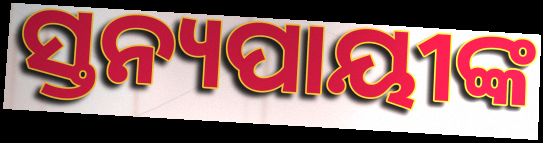
ସ୍ତନ୍ୟପାୟୀଙ୍କ